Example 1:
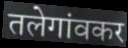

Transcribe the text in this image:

तलेगांवकर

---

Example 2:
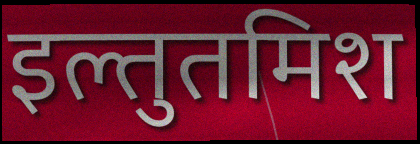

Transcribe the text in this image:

इल्तुतमिश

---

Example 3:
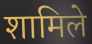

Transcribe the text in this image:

शामिले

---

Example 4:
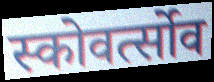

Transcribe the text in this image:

स्कोवर्त्सोव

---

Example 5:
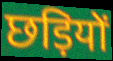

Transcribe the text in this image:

छड़ियों